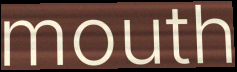
mouth